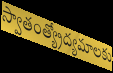
స్వాతంత్య్రోద్యమాలకు